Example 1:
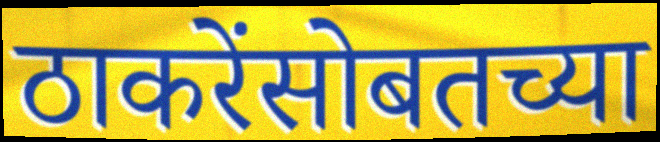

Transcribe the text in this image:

ठाकरेंसोबतच्या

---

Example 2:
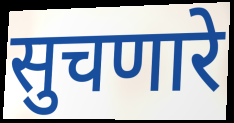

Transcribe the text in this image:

सुचणारे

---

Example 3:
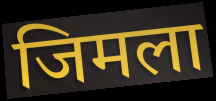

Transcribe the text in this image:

जिमला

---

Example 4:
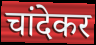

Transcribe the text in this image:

चांदेकर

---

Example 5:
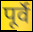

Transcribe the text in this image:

पूर्वे